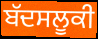
ਬੱਦਸਲੂਕੀ